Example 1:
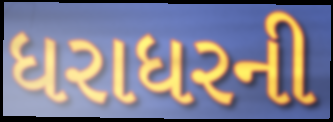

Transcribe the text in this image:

ધરાધરની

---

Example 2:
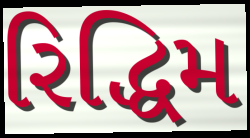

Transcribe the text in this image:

રિદ્ધિમ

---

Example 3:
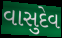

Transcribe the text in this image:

વાસુદેવ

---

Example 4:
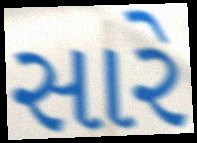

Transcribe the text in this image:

સારે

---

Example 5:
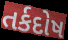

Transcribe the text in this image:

તર્કદોષ